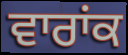
ਵਾਰਾਂਕ